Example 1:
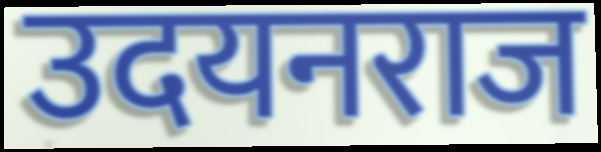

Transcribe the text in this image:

उदयनराज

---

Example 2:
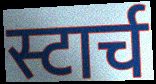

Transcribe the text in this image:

स्टार्च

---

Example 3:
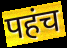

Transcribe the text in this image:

पहंच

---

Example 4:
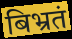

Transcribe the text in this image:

बिभ्रतं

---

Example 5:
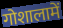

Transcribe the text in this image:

गोशालामें